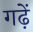
गढ़ें